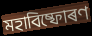
মহাবিষ্ফোৰণ